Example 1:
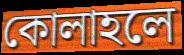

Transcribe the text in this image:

কোলাহলে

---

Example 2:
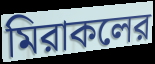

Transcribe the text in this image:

মিরাকলের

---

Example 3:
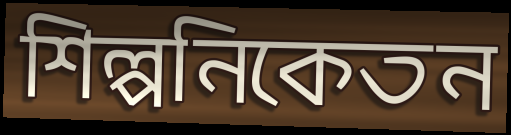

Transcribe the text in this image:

শিল্পনিকেতন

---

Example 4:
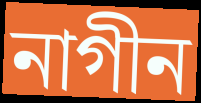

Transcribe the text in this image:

নাগীন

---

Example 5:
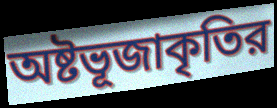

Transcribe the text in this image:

অষ্টভূজাকৃতির